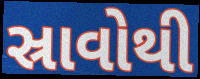
સ્રાવોથી